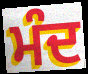
ਮੰਦ